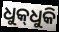
ଧୁକ୍‌ଧୁକି